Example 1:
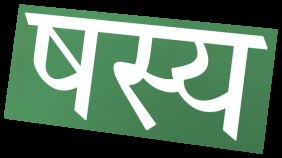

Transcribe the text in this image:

षस्य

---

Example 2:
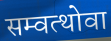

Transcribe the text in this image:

सम्वत्थोवा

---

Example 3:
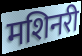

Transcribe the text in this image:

मशिनरी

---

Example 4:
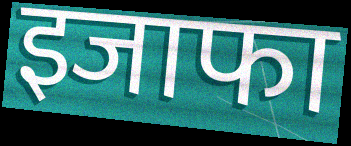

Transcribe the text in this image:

इजाफा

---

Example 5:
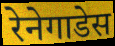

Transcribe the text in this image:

रेनेगाडेस